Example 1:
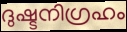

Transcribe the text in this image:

ദുഷ്ടനിഗ്രഹം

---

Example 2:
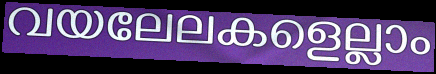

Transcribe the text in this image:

വയലേലകളെല്ലാം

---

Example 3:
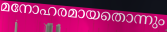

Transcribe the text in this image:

മനോഹരമായതൊന്നും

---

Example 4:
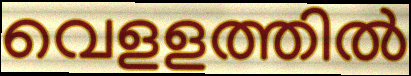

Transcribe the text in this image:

വെളളത്തിൽ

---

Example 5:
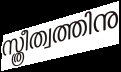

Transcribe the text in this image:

സ്ത്രീത്വത്തിനു